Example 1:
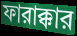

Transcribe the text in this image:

ফারাক্কার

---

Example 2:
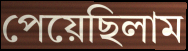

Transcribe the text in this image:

পেয়েছিলাম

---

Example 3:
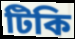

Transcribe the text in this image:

টিকি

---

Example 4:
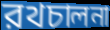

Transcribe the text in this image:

রথচালনা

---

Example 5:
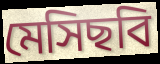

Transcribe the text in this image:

মেসিছবি